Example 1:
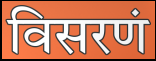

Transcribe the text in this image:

विसरणं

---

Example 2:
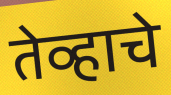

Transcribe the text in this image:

तेव्हाचे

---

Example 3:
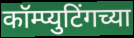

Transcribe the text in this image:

कॉम्प्युटिंगच्या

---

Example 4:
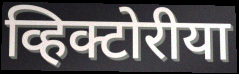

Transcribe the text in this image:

व्हिक्टोरीया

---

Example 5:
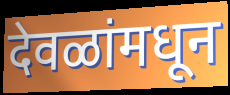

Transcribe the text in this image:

देवळांमधून